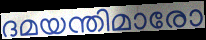
ദമയന്തിമാരോ